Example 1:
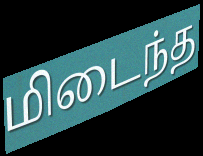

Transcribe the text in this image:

மிடைந்த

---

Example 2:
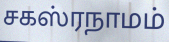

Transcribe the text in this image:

சகஸ்ரநாமம்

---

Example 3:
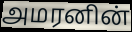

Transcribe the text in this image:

அமரனின்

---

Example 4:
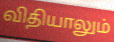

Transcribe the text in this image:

விதியாலும்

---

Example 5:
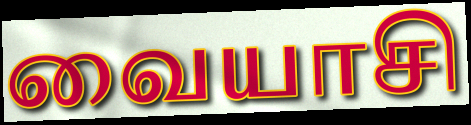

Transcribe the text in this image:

வையாசி